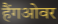
हैंगओवर